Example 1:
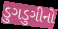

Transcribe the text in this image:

ડુગડુગીનો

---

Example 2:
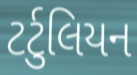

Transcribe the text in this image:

ટર્ટુલિયન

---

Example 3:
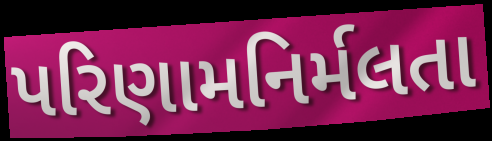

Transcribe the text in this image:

પરિણામનિર્મલતા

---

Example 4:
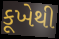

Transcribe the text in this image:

કૂખેથી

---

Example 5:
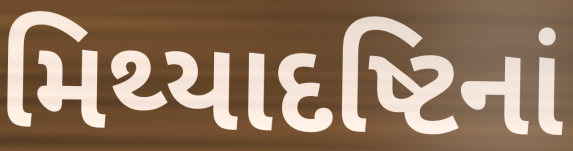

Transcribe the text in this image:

મિથ્યાદષ્ટિનાં